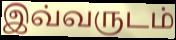
இவ்வருடம்